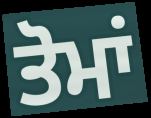
ਤੋਮਾਂ